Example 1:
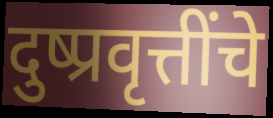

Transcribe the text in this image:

दुष्प्रवृत्तींचे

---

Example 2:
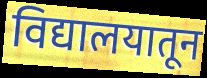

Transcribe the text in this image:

विद्यालयातून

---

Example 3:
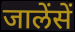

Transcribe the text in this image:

जालेंसें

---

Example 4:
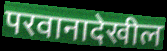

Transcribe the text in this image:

परवानादेखील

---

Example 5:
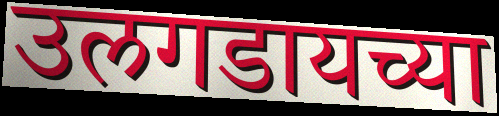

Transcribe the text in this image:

उलगडायच्या